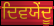
ਦਿਵਯੇਂਦੂ